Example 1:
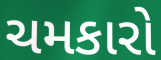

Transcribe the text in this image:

ચમકારો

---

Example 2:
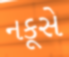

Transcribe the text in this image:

નકૂસે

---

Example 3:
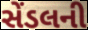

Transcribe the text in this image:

સેંડલની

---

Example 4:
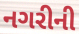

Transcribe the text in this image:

નગરીની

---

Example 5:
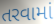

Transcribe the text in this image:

તરવામાં